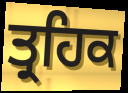
ਤ੍ਰਹਿਕ